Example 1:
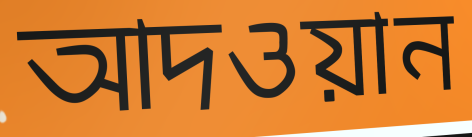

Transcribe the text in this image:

আদওয়ান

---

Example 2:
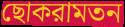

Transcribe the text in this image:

ছোকরামতন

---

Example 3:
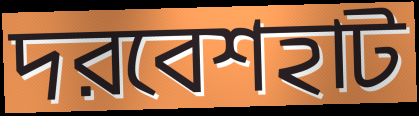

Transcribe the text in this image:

দরবেশহাট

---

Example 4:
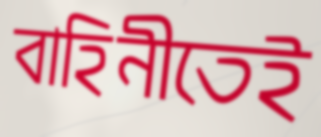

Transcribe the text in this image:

বাহিনীতেই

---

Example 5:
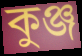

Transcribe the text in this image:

কুঞ্জ